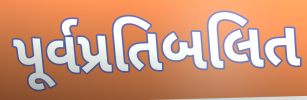
પૂર્વપ્રતિબલિત